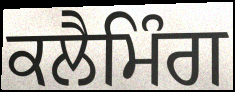
ਕਲੈਮਿੰਗ